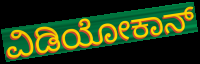
ವಿಡಿಯೋಕಾನ್